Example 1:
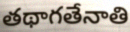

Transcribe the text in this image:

తథాగతేనాతి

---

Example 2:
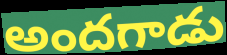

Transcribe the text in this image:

అందగాడు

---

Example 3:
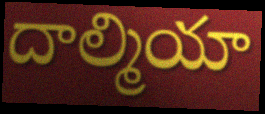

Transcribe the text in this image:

దాల్మియా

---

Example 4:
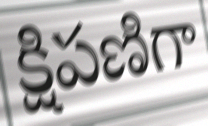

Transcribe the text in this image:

క్షిపణిగా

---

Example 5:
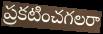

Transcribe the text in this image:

ప్రకటించగలరా